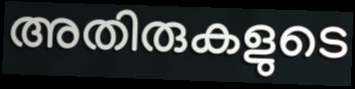
അതിരുകളുടെ